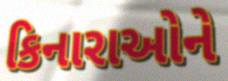
કિનારાઓને